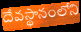
దేవస్థానంలోని